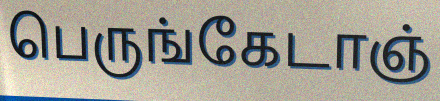
பெருங்கேடாஞ்